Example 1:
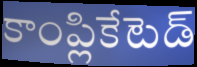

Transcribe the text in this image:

కాంప్లికేటెడ్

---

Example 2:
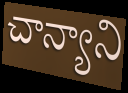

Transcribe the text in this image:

చాన్యాని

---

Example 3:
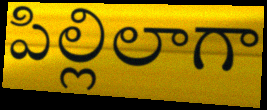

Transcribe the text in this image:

పిల్లిలాగా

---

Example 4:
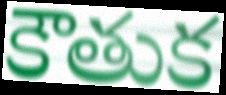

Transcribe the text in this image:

కౌతుక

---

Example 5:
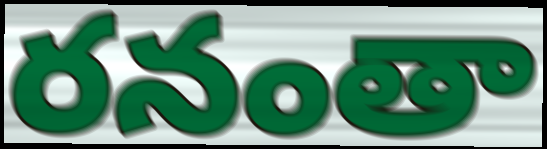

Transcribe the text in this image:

రనంతా